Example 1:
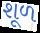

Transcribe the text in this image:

શૂળ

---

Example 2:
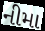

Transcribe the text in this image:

નીમા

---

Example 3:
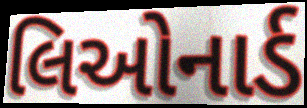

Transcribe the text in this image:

લિઓનાર્ડ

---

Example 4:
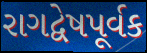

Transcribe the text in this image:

રાગદ્વેષપૂર્વક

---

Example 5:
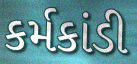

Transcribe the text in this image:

કર્મકાંડી